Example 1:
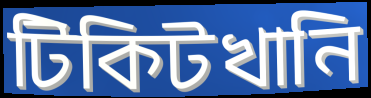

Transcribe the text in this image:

টিকিটখানি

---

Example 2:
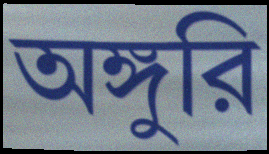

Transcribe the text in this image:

অঙ্গুরি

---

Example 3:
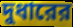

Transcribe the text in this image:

দুধারের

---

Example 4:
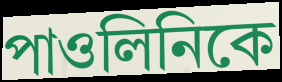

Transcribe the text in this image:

পাওলিনিকে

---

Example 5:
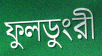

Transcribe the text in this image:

ফুলডুংরী